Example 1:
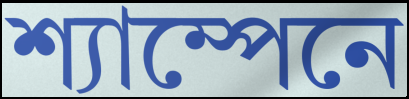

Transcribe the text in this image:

শ্যাম্পেনে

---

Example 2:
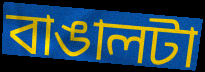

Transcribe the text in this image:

বাঙালটা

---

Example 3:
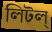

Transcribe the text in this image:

লিটল্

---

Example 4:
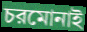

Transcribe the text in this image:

চরমোনাই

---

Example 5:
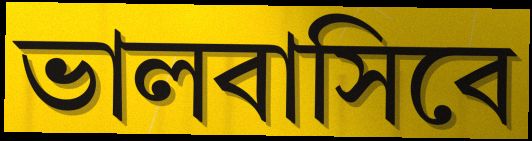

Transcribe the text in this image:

ভালবাসিবে